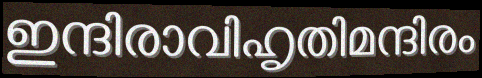
ഇന്ദിരാവിഹൃതിമന്ദിരം